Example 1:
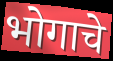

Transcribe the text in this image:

भोगाचे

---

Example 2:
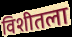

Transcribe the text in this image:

विशीतला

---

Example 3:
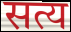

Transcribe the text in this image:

सत्य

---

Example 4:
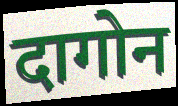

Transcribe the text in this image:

दागोन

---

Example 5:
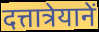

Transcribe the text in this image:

दत्तात्रेयानें